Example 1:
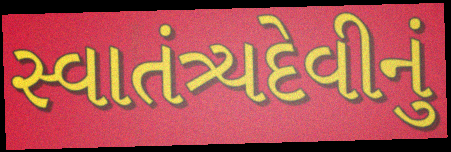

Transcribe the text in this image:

સ્વાતંત્ર્યદેવીનું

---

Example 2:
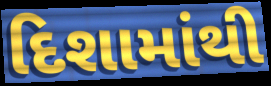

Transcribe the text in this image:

દિશામાંથી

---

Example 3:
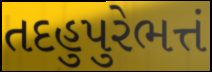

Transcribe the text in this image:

તદહુપુરેભત્તં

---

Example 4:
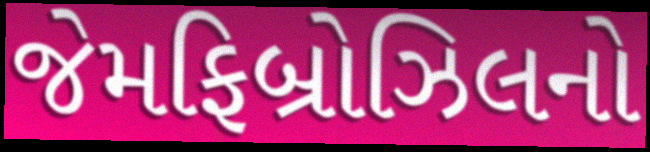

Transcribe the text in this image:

જેમફિબ્રોઝિલનો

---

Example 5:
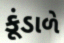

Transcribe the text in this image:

કૂંડાળે